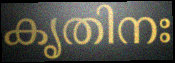
കൃതിനഃ